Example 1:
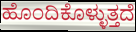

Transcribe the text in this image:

ಹೊಂದಿಕೊಳ್ಳುತ್ತದೆ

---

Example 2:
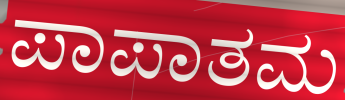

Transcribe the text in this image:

ಪಾಪಾತಮ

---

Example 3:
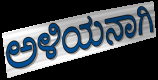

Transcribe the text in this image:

ಅಳಿಯನಾಗಿ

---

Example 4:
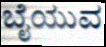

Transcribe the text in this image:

ಬೈಯುವ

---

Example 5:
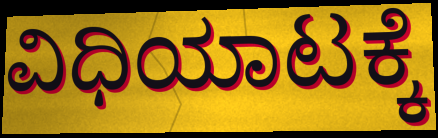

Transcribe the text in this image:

ವಿಧಿಯಾಟಕ್ಕೆ